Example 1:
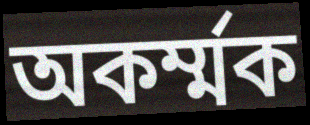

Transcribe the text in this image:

অকৰ্ম্মক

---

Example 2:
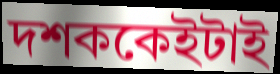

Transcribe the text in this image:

দশককেইটাই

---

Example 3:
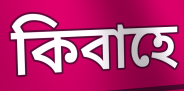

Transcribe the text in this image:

কিবাহে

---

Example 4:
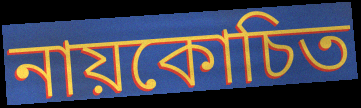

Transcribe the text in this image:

নায়কোচিত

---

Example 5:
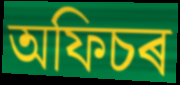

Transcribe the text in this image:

অফিচৰ